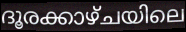
ദൂരക്കാഴ്ചയിലെ